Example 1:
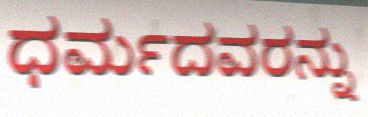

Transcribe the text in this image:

ಧರ್ಮದವರನ್ನು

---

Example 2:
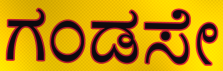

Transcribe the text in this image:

ಗಂಡಸೇ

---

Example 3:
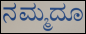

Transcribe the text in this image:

ನಮ್ಮದೂ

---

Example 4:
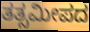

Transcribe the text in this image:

ತತ್ಸಮೀಪದ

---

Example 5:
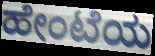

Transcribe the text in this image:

ಹೇಂಟೆಯ